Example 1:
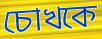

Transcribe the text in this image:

চোখকে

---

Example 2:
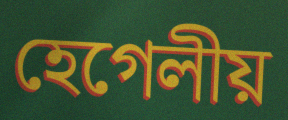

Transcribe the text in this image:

হেগেলীয়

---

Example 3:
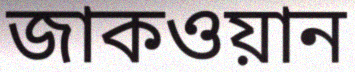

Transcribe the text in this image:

জাকওয়ান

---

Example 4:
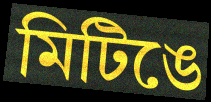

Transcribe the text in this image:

মিটিঙে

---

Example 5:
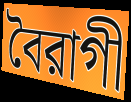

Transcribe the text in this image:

বৈরাগী